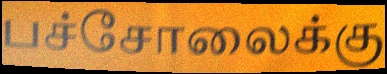
பச்சோலைக்கு